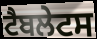
ਟੈਬਲੇਟਸ